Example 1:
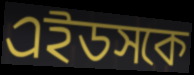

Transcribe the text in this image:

এইডসকে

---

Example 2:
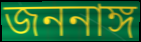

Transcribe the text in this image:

জননাঙ্গ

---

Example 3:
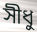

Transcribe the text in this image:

সীধু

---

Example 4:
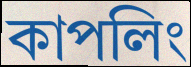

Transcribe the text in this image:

কাপলিং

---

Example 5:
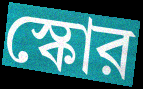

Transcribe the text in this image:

স্কোর